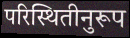
परिस्थितीनुरूप